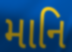
માનિ